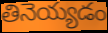
తినెయ్యడం